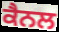
ਕੈਨਲ